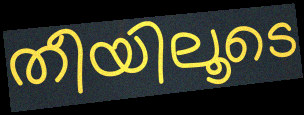
തീയിലൂടെ